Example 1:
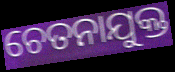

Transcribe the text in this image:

ଚେତନାଯୁକ୍ତ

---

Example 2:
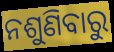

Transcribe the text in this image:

ନଶୁଣିବାରୁ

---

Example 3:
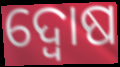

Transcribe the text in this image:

ଦ୍ୱୋଷ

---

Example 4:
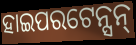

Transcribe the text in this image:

ହାଇପରଟେନ୍ସନ୍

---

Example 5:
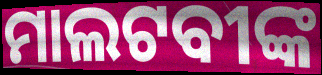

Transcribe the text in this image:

ମାଲଟବୀଙ୍କ